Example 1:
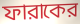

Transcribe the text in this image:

ফারাকের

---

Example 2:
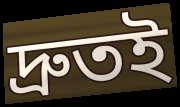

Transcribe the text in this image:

দ্রুতই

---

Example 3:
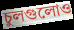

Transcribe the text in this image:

চুলগুলোও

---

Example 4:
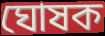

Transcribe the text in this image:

ঘোষক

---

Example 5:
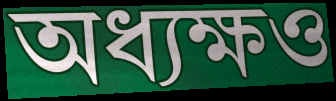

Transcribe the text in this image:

অধ্যক্ষও